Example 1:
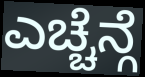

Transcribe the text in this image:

ಎಚ್ಚೆನ್ಗೆ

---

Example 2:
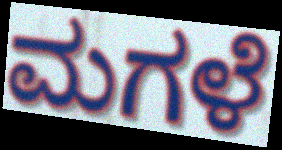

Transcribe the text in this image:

ಮಗಳೆ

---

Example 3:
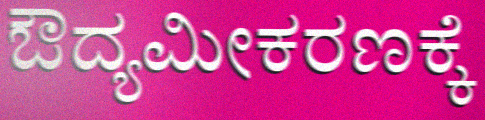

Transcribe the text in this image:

ಔದ್ಯಮೀಕರಣಕ್ಕೆ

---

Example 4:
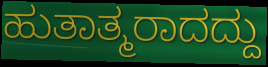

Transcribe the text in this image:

ಹುತಾತ್ಮರಾದದ್ದು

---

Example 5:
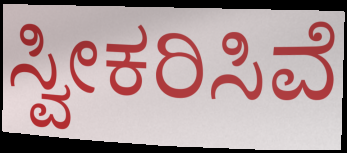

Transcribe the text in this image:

ಸ್ವೀಕರಿಸಿವೆ